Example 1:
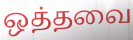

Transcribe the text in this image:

ஒத்தவை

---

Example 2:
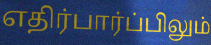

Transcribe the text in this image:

எதிர்பார்ப்பிலும்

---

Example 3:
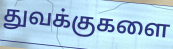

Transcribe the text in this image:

துவக்குகளை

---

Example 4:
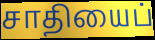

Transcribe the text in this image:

சாதியைப்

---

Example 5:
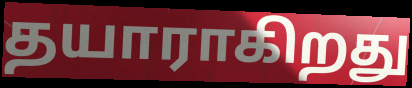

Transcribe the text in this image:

தயாராகிறது